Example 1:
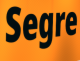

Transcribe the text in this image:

Segre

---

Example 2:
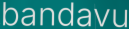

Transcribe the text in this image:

bandavu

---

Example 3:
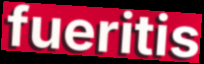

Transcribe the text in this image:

fueritis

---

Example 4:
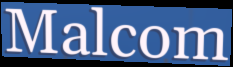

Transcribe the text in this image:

Malcom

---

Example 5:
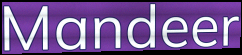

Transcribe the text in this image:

Mandeer